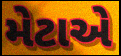
મેટાએ